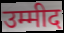
उम्मीद